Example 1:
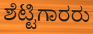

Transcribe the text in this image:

ಶೆಟ್ಟಿಗಾರರು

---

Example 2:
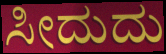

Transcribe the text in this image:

ಸೀದುದು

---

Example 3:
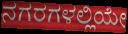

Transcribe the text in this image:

ನಗರಗಳಲ್ಲಿಯೇ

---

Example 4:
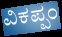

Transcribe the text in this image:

ವಿಕಪ್ಪಂ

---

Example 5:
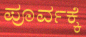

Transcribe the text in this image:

ಪೂರ್ವಕ್ಕೆ